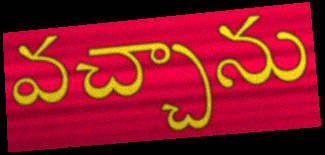
వచ్చాను